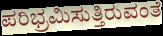
ಪರಿಭ್ರಮಿಸುತ್ತಿರುವಂತೆ